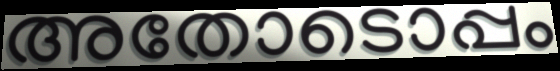
അതോടൊപ്പം